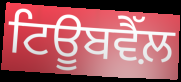
ਟਿਊਬਵੈੱਲ਼